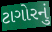
ટાગોરનું